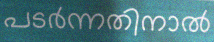
പടർന്നതിനാൽ